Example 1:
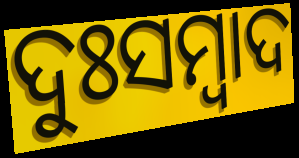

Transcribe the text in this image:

ଦୁଃସମ୍ବାଦ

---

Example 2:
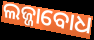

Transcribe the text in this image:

ଲଜ୍ଜାବୋଧ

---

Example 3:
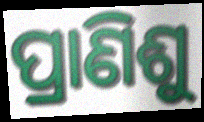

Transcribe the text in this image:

ପ୍ରାଣିଶୁ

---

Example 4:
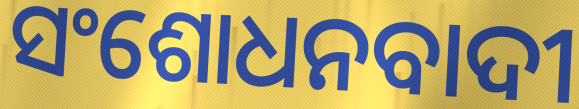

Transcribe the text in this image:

ସଂଶୋଧନବାଦୀ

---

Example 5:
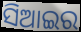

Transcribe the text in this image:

ସିଆଇର